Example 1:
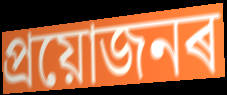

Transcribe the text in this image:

প্ৰয়োজনৰ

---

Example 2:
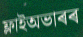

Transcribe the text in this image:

ফ্লাইঅভাৰৰ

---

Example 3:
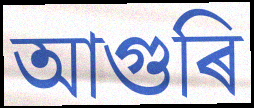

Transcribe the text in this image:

আগুৰি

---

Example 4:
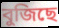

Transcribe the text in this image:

বুজিছে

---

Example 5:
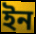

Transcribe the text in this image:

ইন